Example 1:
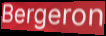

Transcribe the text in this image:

Bergeron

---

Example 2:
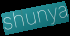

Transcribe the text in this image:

shunya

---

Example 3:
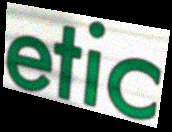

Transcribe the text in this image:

etic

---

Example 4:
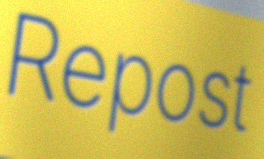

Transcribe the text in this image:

Repost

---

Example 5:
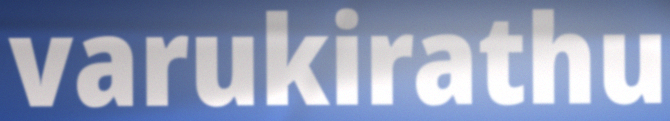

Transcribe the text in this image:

varukirathu